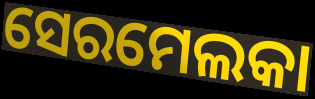
ସେରମେଲକା